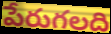
పేరుగలది